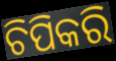
ଚିପିକରି